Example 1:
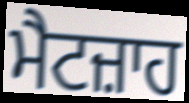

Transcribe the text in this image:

ਮੈਟਜ਼ਾਹ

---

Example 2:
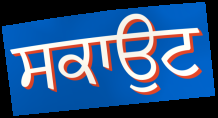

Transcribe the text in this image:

ਸਕਾਉਟ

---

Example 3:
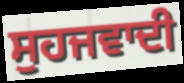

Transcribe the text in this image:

ਸੁਹਜਵਾਦੀ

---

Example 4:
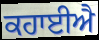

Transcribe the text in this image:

ਕਹਾਈਐ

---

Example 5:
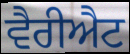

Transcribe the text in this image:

ਵੈਰੀਐਟ